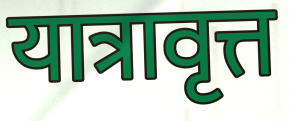
यात्रावृत्त